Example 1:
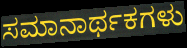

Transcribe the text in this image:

ಸಮಾನಾರ್ಥಕಗಳು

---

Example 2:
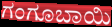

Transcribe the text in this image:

ಗಂಗೂಬಾಯಿ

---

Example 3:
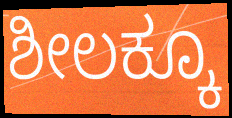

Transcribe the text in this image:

ಶೀಲಕ್ಕೂ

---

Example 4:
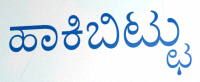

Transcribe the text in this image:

ಹಾಕಿಬಿಟ್ಟು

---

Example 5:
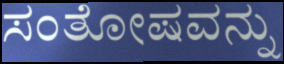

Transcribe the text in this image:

ಸಂತೋಷವನ್ನು